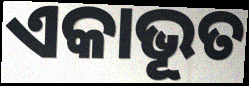
ଏକାଭୂତ